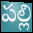
పల్లి